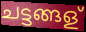
ചട്ടങ്ങള്